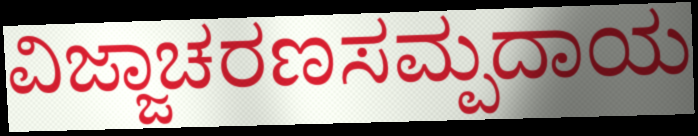
ವಿಜ್ಜಾಚರಣಸಮ್ಪದಾಯ